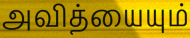
அவித்யையும்